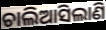
ଚାଲିଆସିଲାଣି